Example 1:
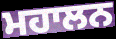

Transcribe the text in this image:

ਮਹਾਲਨ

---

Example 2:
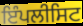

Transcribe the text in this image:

ਇੰਪਲੀਸਿਟ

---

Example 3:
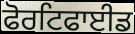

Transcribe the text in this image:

ਫੋਰਟਿਫਾਈਡ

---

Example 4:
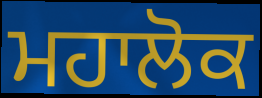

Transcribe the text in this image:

ਮਹਾਲੋਕ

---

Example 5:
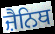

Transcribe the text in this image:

ਜ਼ੈਨਿਥ